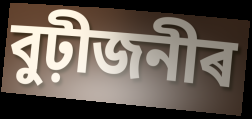
বুঢ়ীজনীৰ